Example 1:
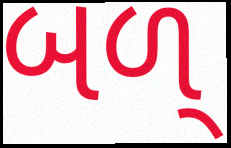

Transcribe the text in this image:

બળ્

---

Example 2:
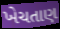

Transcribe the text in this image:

ખેચતાણ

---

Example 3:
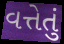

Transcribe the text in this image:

વત્તેતું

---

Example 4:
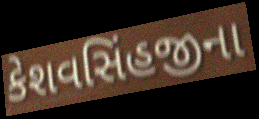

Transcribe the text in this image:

કેશવસિંહજીના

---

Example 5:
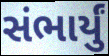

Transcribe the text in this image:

સંભાર્યું